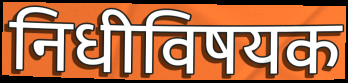
निधीविषयक